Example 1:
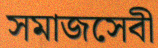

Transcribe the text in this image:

সমাজসেবী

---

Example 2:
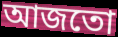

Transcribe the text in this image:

আজতো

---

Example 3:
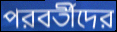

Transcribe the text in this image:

পরবর্তীদের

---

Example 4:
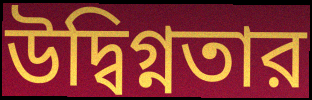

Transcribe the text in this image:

উদ্বিগ্নতার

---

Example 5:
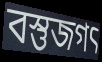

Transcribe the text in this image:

বস্তুজগৎ